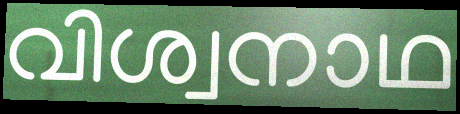
വിശ്വനാഥ